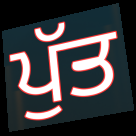
ਪੁੱਤ